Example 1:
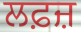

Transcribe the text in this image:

ਲਫ਼ਜ਼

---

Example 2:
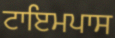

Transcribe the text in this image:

ਟਾਇਮਪਾਸ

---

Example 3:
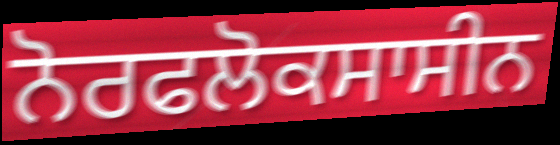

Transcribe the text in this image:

ਨੋਰਫਲੋਕਸਾਸੀਨ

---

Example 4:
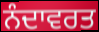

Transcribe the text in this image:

ਨੰਦਾਵਰਤ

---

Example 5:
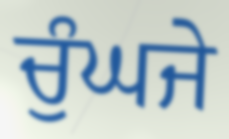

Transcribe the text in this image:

ਚੁੰਘਜੇ